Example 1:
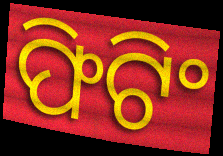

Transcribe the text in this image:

ଫିଟିଂ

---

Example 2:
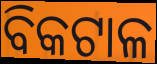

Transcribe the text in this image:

ବିକଟାଳ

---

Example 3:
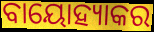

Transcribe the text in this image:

ବାୟୋହ୍ୟାକର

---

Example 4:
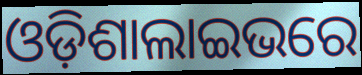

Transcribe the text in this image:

ଓଡ଼ିଶାଲାଇଭରେ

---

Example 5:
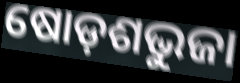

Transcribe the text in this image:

ଷୋଡ଼ଶଭୁଜା